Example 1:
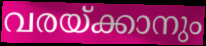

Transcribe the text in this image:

വരയ്ക്കാനും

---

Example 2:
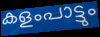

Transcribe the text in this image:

കളംപാട്ടും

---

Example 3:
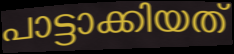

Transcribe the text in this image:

പാട്ടാക്കിയത്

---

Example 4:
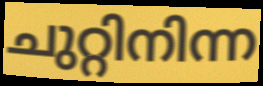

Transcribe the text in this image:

ചുറ്റിനിന്ന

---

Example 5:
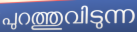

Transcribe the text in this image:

പുറത്തുവിടുന്ന